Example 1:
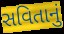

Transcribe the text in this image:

સવિતાનું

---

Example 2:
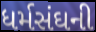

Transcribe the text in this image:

ધર્મસંઘની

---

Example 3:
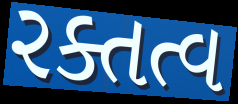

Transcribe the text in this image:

રક્તત્વ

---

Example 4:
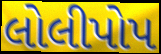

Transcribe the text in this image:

લોલીપોપ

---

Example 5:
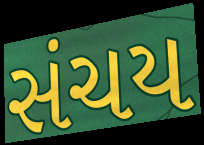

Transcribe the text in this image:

સંચય